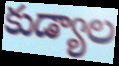
కుడ్యాల